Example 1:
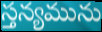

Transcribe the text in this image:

స్తన్యమును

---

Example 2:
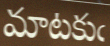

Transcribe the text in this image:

మాటకుఁ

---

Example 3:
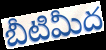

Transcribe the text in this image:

బీటిమీద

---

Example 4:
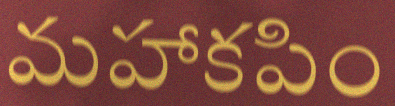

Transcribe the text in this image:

మహాకపిం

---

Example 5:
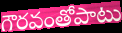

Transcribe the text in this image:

గౌరవంతోపాటు